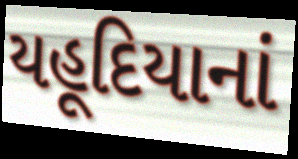
યહૂદિયાનાં